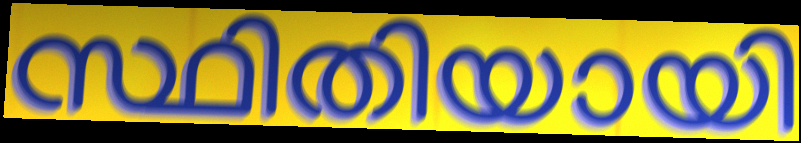
സ്ഥിതിയായി